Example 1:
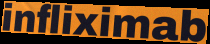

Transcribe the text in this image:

infliximab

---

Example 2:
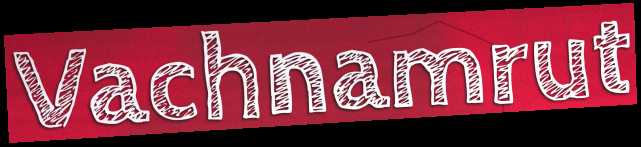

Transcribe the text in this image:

Vachnamrut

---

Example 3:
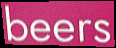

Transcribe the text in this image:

beers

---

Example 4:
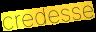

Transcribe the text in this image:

credesse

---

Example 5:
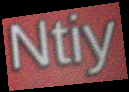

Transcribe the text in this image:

Ntiy